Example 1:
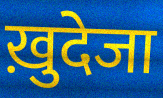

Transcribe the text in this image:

ख़ुदेजा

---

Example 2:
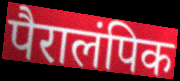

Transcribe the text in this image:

पैरालंपिक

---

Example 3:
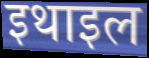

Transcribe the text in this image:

इथाइल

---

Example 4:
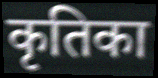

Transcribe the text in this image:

कृतिका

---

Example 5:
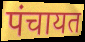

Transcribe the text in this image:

पंचायत